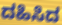
ದಹಿಸಿದ